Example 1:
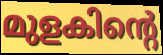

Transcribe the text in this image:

മുളകിന്റെ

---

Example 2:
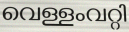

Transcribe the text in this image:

വെള്ളംവറ്റി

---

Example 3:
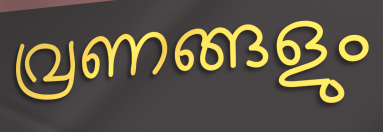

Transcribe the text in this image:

വ്രണങ്ങളും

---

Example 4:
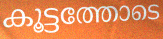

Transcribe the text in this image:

കൂട്ടത്തോടെ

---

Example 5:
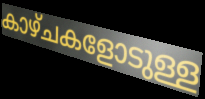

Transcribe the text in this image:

കാഴ്ചകളോടുള്ള